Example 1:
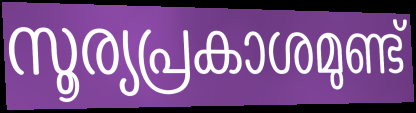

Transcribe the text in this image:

സൂര്യപ്രകാശമുണ്ട്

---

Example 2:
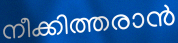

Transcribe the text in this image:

നീക്കിത്തരാൻ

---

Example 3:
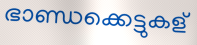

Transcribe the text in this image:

ഭാണ്ഡക്കെട്ടുകള്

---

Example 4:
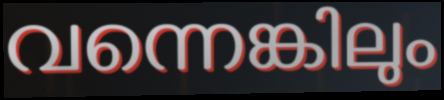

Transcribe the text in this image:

വന്നെങ്കിലും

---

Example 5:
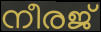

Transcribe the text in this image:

നീരജ്